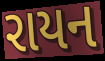
રાયન